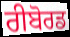
ਰੀਬੋਰਡ